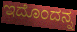
ಇದೊಂದನ್ನ